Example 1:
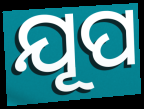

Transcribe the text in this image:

ଯୂପ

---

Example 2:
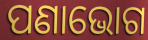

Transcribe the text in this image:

ପଣାଭୋଗ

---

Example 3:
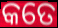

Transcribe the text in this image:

କତେ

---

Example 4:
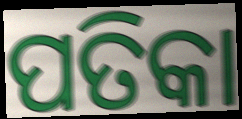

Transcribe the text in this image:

ପତିକା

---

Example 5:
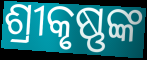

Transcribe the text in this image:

ଶ୍ରୀକୃଷ୍ଣଙ୍କ